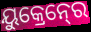
ୟୁକ୍ରେନ୍‍ରେ